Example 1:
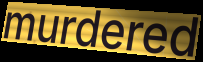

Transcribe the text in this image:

murdered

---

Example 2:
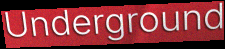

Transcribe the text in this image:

Underground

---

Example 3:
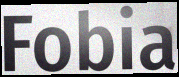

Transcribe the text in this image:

Fobia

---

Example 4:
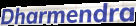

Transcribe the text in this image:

Dharmendra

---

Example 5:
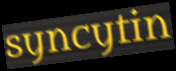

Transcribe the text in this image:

syncytin